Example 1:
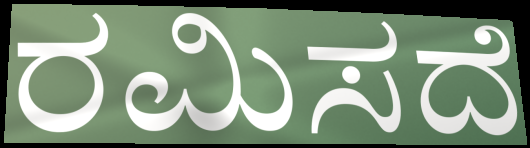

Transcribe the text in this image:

ರಮಿಸದೆ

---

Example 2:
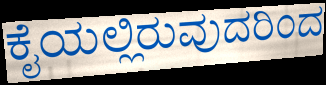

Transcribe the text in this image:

ಕೈಯಲ್ಲಿರುವುದರಿಂದ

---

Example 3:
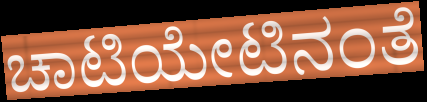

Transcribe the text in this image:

ಚಾಟಿಯೇಟಿನಂತೆ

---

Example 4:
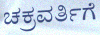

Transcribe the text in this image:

ಚಕ್ರವರ್ತಿಗೆ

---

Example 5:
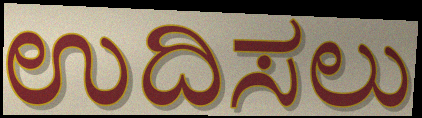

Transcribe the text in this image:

ಉದಿಸಲು